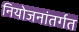
नियोजनांतर्गत